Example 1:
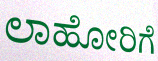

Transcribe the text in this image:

ಲಾಹೋರಿಗೆ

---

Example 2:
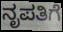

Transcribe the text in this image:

ನೃಪತಿಗೆ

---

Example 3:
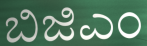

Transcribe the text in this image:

ಬಿಜಿಎಂ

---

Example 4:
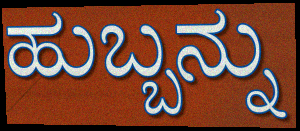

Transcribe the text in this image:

ಹುಬ್ಬನ್ನು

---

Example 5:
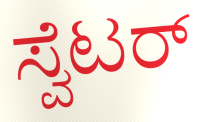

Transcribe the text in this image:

ಸ್ವೆಟರ್